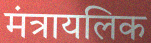
मंत्रायलिक